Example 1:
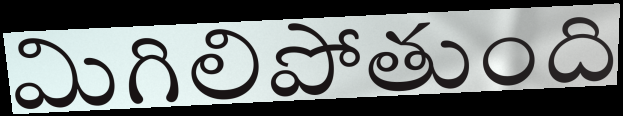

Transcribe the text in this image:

మిగిలిపోతుంది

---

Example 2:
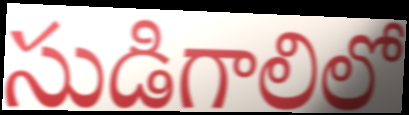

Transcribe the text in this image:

సుడిగాలిలో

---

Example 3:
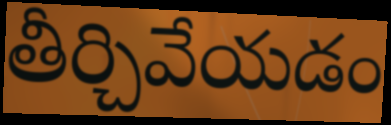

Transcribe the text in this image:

తీర్చివేయడం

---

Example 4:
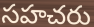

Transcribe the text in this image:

సహచరు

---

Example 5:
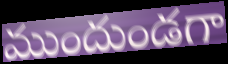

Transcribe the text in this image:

ముందుండగా